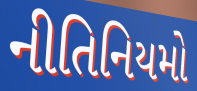
નીતિનિયમો